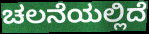
ಚಲನೆಯಲ್ಲಿದೆ